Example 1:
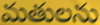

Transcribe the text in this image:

మతులను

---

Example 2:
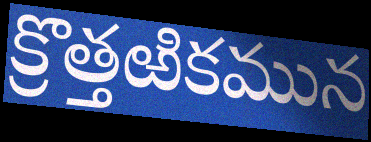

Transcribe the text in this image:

క్రొత్తఱికమున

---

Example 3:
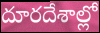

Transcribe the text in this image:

దూరదేశాల్లో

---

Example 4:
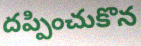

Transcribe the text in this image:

దప్పించుకొన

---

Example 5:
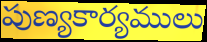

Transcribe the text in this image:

పుణ్యకార్యములు